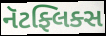
નૅટફ્લિક્સ